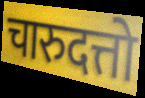
चारुदत्तो